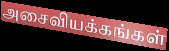
அசைவியக்கங்கள்